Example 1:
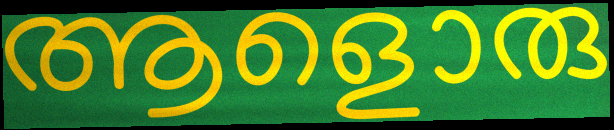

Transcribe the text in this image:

ആളൊരു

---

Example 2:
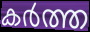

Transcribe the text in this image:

കർത്ത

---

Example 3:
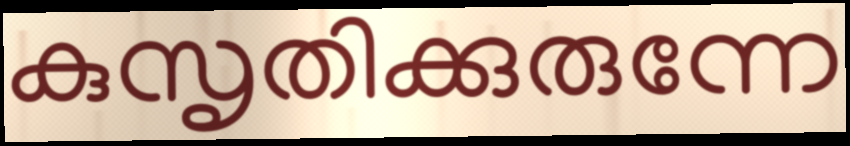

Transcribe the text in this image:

കുസൃതിക്കുരുന്നേ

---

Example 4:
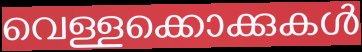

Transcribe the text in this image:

വെള്ളക്കൊക്കുകൾ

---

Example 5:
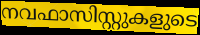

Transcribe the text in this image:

നവഫാസിസ്റ്റുകളുടെ